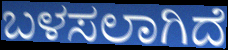
ಬಳಸಲಾಗಿದೆ